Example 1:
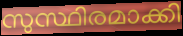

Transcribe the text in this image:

സുസ്ഥിരമാക്കി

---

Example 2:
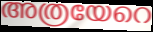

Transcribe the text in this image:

അത്രയേറെ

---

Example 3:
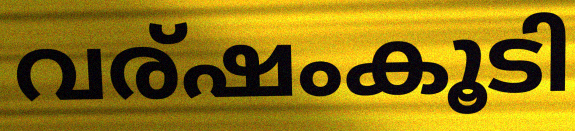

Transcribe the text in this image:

വര്ഷംകൂടി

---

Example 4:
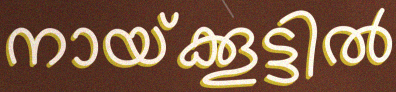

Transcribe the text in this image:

നായ്‌ക്കൂട്ടിൽ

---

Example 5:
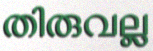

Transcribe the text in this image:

തിരുവല്ല